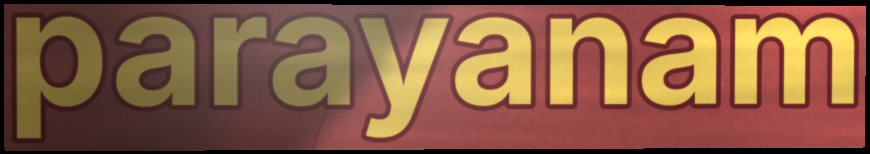
parayanam